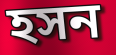
হসন